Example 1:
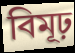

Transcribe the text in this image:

বিমূঢ়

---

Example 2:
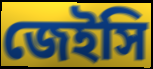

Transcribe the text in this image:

জেইসি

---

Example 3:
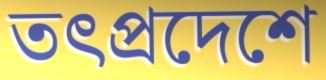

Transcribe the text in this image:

তৎপ্রদেশে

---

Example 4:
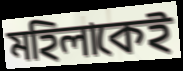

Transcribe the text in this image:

মহিলাকেই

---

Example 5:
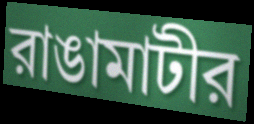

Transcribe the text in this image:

রাঙামাটীর